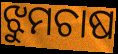
ଝୁମଚାଷ